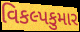
વિકલ્પકુમાર